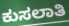
ಕುಸಲಾತಿ